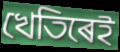
খেতিৰেই